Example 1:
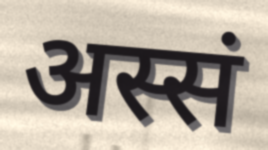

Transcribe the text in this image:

अस्सं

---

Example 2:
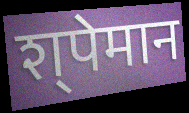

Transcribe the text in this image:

श्पेमान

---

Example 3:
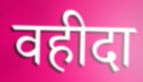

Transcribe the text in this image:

वहीदा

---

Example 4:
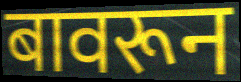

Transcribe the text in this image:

बावरून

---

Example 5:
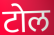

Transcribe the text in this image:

टोल